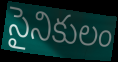
సైనికులం